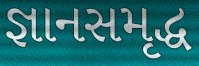
જ્ઞાનસમૃદ્ધ